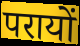
परायों